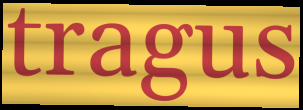
tragus